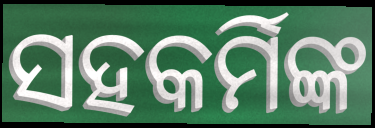
ସହକର୍ମିଙ୍କ